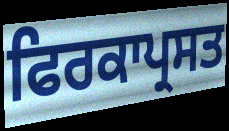
ਫਿਰਕਾਪ੍ਰਸਤ